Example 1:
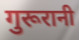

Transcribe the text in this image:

गुरूरानी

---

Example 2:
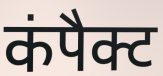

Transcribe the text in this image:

कंपैक्ट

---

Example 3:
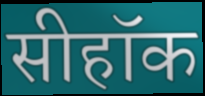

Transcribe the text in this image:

सीहॉक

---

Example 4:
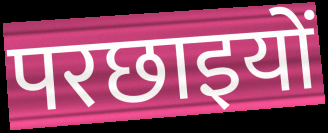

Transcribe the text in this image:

परछाइयों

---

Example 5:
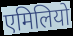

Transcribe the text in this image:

एमिलियो